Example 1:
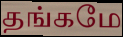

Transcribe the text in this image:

தங்கமே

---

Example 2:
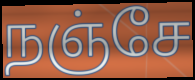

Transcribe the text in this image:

நஞ்சே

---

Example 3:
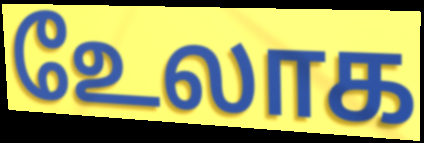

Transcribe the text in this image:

உேலாக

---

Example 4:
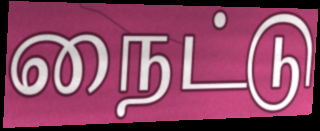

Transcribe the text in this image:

நைட்டு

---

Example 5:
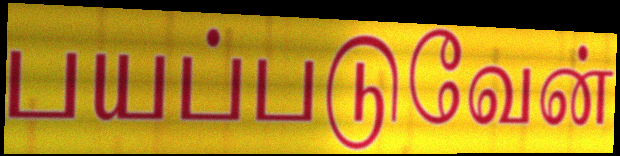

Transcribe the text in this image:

பயப்படுவேன்